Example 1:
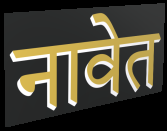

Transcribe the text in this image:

नावेत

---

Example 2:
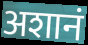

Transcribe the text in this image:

अशानं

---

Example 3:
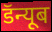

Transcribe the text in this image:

डॅन्यूब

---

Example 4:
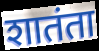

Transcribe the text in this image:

शातंता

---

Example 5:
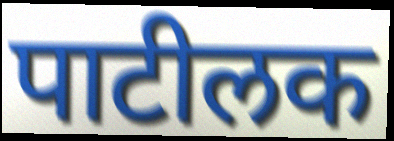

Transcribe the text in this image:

पाटीलक